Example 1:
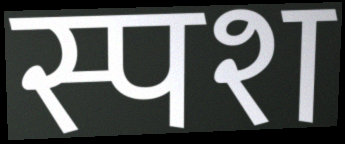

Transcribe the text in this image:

स्पश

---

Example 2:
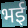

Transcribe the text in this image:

भई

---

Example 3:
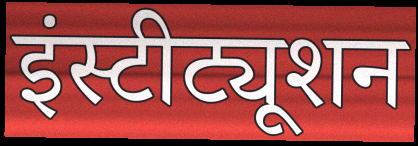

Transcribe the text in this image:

इंस्टीट्यूशन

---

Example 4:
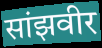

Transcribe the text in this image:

सांझवीर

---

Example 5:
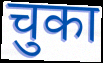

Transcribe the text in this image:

चुका